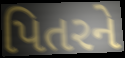
પિતરને